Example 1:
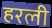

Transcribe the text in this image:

हरली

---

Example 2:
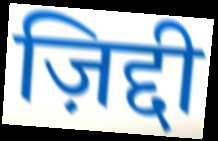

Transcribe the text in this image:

ज़िद्दी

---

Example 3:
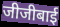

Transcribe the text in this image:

जीजीबाई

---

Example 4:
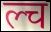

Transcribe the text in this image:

ल्च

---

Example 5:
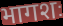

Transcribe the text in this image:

भागशः